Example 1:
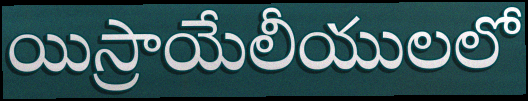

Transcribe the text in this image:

యిస్రాయేలీయులలో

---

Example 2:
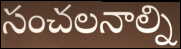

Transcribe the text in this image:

సంచలనాల్ని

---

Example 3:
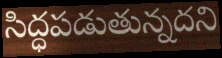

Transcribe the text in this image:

సిద్ధపడుతున్నదని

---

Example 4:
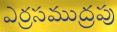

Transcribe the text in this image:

ఎర్రసముద్రపు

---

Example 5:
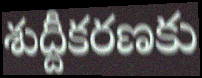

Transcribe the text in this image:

శుద్దీకరణకు